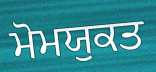
ਮੋਮਯੁਕਤ